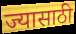
ज्यासाठी